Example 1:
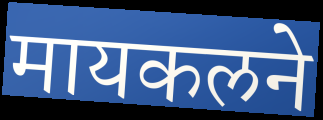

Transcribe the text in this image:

मायकलने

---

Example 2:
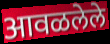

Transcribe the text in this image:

आवळलेले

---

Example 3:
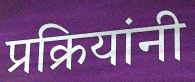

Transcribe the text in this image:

प्रक्रियांनी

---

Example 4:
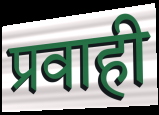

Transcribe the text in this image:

प्रवाही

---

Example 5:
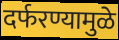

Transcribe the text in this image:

दर्फरण्यामुळे